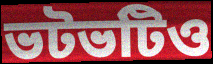
ভটভটিও